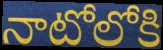
నాటోలోకి